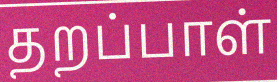
தறப்பாள்